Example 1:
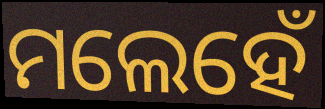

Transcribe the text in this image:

ମଲେହେଁ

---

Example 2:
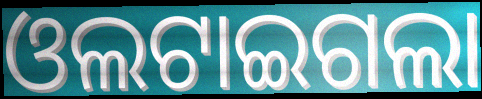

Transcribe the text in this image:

ଓଲଟାଇଗଲା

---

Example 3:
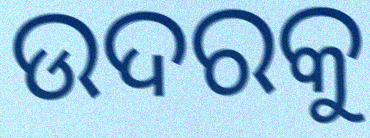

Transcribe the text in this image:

ଉଦରକୁ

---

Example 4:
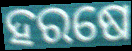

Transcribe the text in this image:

ହରଷେ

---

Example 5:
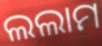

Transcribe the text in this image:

ଲଲାମ